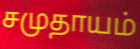
சமுதாயம்